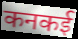
कनकई